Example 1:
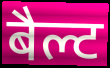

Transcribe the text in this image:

बैल्ट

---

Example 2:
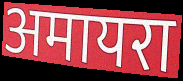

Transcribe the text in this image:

अमायरा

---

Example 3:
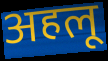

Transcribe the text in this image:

अहलू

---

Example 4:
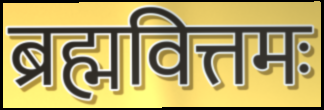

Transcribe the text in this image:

ब्रह्मवित्तमः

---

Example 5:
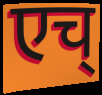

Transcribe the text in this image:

एच्